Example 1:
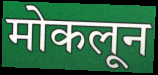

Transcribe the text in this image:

मोकलून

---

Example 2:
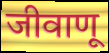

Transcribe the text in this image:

जीवाणू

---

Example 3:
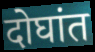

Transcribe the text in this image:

दोघांत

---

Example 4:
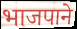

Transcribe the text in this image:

भाजपाने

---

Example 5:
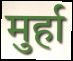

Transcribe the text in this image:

मुर्हा